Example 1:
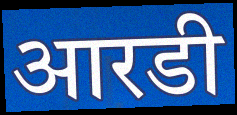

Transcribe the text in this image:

आरडी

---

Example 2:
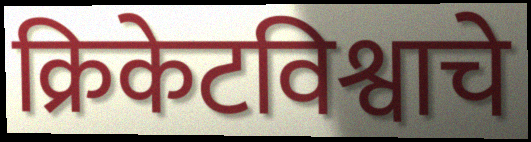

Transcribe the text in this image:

क्रिकेटविश्वाचे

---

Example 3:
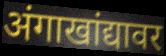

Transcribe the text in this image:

अंगाखांद्यावर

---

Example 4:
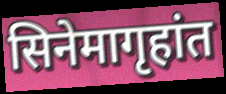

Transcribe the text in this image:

सिनेमागृहांत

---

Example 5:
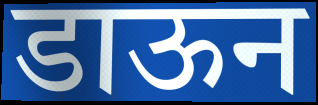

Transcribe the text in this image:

डाऊन